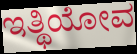
ಇತ್ಥಿಯೋವ